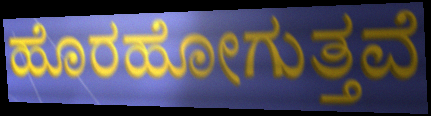
ಹೊರಹೋಗುತ್ತವೆ